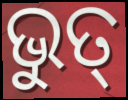
ଭୁତ୍